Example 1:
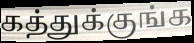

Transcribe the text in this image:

கத்துக்குங்க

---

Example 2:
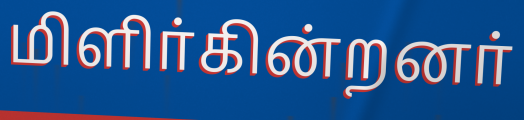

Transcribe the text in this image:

மிளிர்கின்றனர்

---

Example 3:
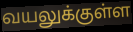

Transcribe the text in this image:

வயலுக்குள்ள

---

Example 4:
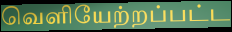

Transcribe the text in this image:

வெளியேற்றப்பட்ட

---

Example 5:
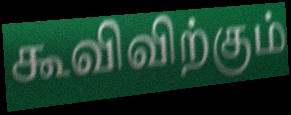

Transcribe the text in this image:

கூவிவிற்கும்